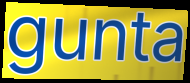
gunta